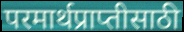
परमार्थप्राप्तीसाठी